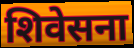
शिवेसना